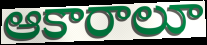
ఆకారాలూ